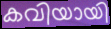
കവിയായി